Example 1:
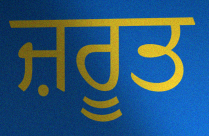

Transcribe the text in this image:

ਜ਼ਰੂਤ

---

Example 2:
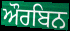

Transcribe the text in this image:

ਔਰਬਿਨ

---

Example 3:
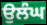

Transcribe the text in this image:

ਉਲੰਘ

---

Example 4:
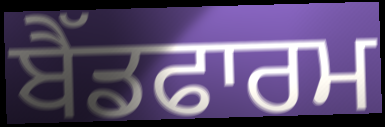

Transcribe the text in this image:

ਬੈੱਡਫਾਰਮ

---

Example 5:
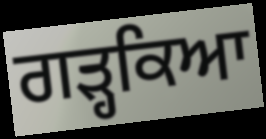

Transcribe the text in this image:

ਗੜ੍ਹਕਿਆ